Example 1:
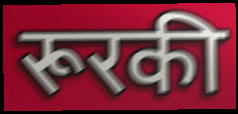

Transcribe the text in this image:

रूरकी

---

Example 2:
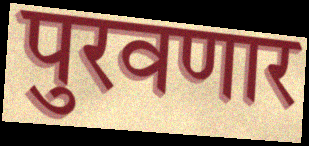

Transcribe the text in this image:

पुरवणार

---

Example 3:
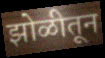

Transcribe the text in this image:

झोळीतून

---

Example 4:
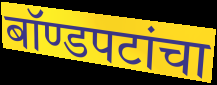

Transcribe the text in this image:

बॉण्डपटांचा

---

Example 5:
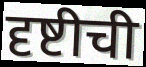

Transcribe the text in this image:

दृष्टीची